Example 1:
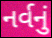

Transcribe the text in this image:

નર્વનું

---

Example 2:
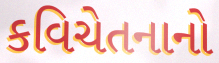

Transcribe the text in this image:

કવિચેતનાનો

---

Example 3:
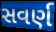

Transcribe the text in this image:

સવર્ણ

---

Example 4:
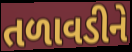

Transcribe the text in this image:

તળાવડીને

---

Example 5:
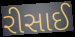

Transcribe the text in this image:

રીસાઈ